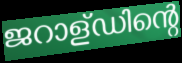
ജറാള്ഡിന്റെ